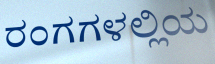
ರಂಗಗಳಲ್ಲಿಯ